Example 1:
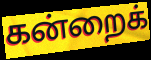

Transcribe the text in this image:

கன்றைக்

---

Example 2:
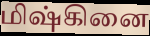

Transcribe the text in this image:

மிஷ்கினை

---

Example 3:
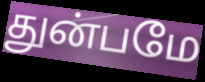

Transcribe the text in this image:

துன்பமே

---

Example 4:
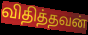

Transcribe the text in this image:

விதித்தவன்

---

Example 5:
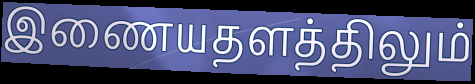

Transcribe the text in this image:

இணையதளத்திலும்